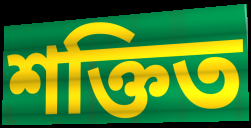
শক্তিত